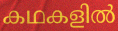
കഥകളിൽ